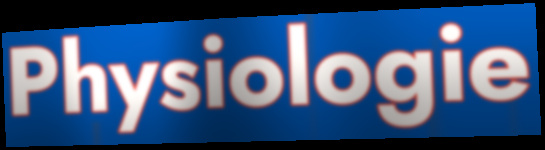
Physiologie